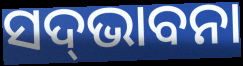
ସଦ୍‌ଭାବନା